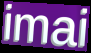
imai